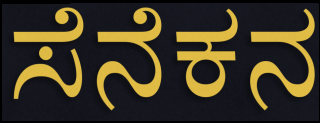
ಸೆನೆಕನ